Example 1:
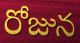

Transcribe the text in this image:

రోజున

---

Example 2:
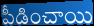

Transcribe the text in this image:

పీడించాయి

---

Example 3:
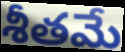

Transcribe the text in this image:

శీతమే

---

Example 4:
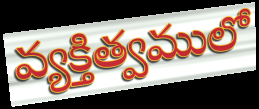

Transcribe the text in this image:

వ్యక్తిత్వములో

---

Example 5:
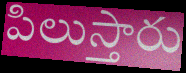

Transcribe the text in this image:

పిలుస్తారు